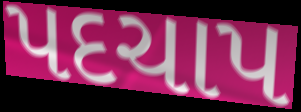
પદચાપ